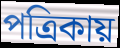
পত্রিকায়